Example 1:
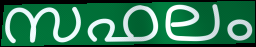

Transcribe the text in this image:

സഫലം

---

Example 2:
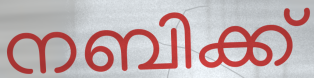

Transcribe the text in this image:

നബിക്ക്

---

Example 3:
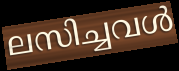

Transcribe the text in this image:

ലസിച്ചവൾ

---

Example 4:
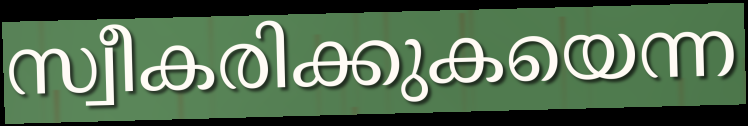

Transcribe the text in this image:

സ്വീകരിക്കുകയെന്ന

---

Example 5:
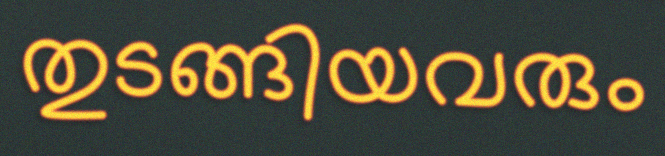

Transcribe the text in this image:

തുടങ്ങിയവരും